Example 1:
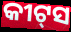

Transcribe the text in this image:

କୀଟ୍‌ସ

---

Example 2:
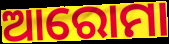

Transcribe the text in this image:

ଆରୋମା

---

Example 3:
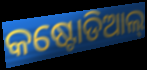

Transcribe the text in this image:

କଷ୍ଟୋଡିଆଲ୍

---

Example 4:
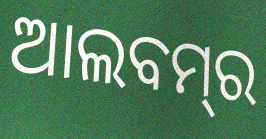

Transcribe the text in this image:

ଆଲବମ୍‌ର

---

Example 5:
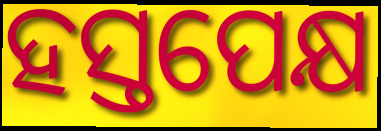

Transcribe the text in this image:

ହସ୍ତପେକ୍ଷ